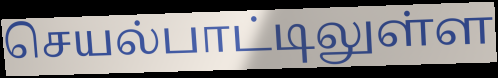
செயல்பாட்டிலுள்ள